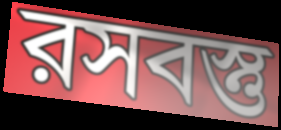
রসবস্তু